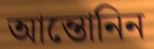
আন্তোনিন